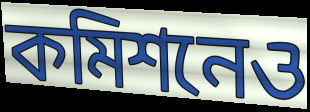
কমিশনেও